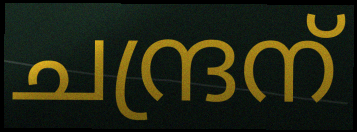
ചന്ദ്രന്